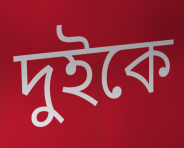
দুইকে